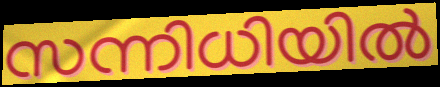
സന്നിധിയിൽ